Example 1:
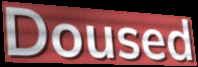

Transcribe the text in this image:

Doused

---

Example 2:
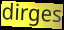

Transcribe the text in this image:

dirges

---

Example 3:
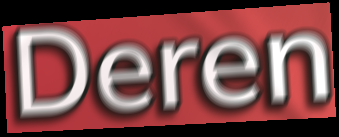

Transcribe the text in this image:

Deren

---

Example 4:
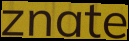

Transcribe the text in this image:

znate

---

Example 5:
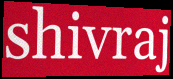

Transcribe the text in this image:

shivraj